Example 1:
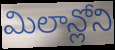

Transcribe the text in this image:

మిలాన్లోని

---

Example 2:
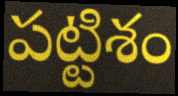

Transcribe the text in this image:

పట్టిశం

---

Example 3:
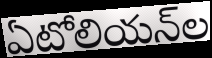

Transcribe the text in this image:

ఏటోలియన్‌ల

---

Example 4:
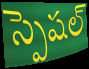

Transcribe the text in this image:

స్పెషల్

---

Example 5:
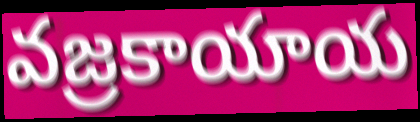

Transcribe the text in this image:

వజ్రకాయాయ